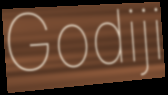
Godiji